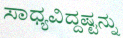
ಸಾಧ್ಯವಿದ್ದಷ್ಟನ್ನು